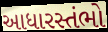
આધારસ્તંભો